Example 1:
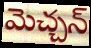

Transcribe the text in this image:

మెచ్చన్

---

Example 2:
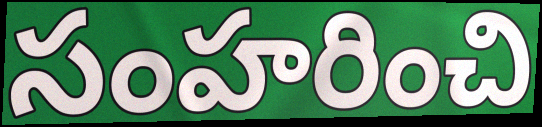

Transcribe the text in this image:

సంహరించి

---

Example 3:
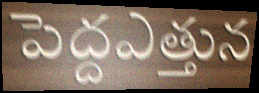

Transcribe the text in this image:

పెద్దఎత్తున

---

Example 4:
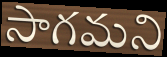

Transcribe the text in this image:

సాగమని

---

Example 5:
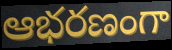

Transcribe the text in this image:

ఆభరణంగా